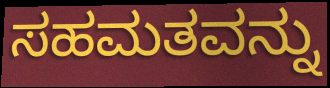
ಸಹಮತವನ್ನು